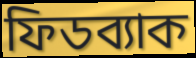
ফিডব্যাক